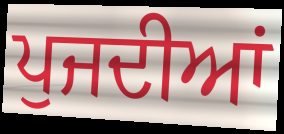
ਪੁਜਦੀਆਂ